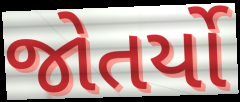
જોતર્યો